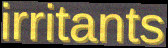
irritants